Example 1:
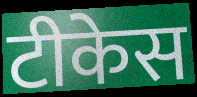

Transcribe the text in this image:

टीकेस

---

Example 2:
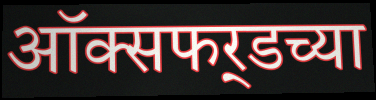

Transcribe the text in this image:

ऑक्सफर्डच्या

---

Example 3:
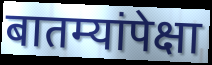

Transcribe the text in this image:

बातम्यांपेक्षा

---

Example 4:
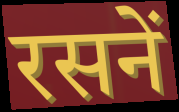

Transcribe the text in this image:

रसनें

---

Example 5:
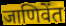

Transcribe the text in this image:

जाणिवेंत